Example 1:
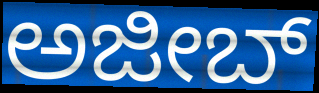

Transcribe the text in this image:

ಅಜೀಬ್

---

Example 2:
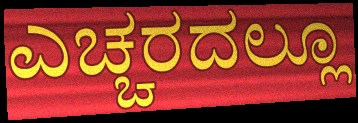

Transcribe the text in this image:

ಎಚ್ಚರದಲ್ಲೂ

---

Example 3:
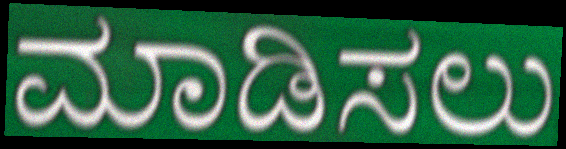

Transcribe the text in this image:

ಮಾಡಿಸಲು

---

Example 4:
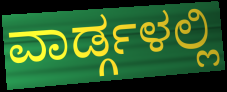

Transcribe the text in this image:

ವಾರ್ಡ್ಗಳಲ್ಲಿ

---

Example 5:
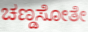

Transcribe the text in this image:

ಚಣ್ಡಸೋತೇ